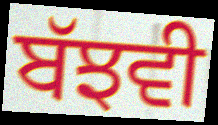
ਬੱਝਵੀ